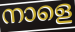
നാളെ